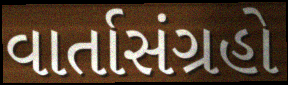
વાર્તાસંગ્રહો